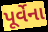
પૂર્વેના